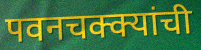
पवनचक्क्यांची